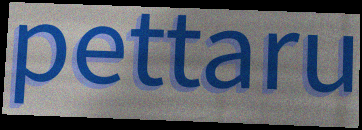
pettaru